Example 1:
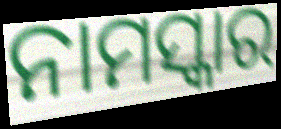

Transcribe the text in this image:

ନାମସ୍କାର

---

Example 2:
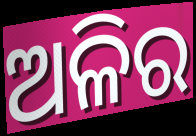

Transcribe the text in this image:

ଅଳିର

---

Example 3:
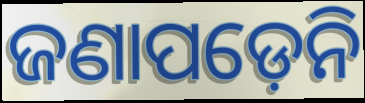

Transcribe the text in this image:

ଜଣାପଡ଼େନି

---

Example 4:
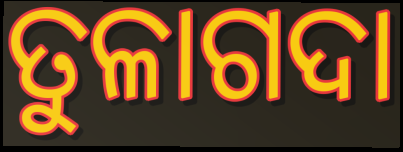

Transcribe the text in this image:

ତୁଳାଗଦା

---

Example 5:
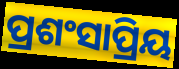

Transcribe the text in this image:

ପ୍ରଶଂସାପ୍ରିୟ